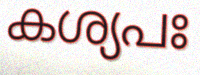
കശ്യപഃ